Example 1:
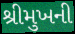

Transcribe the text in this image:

શ્રીમુખની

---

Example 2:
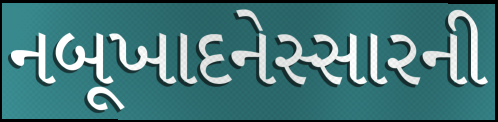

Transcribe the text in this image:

નબૂખાદનેસ્સારની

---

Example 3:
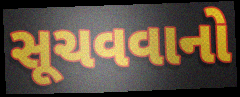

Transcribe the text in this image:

સૂચવવાનો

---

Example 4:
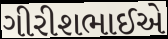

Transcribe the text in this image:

ગીરીશભાઈએ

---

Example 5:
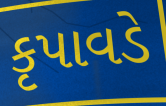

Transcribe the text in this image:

કૃપાવડે